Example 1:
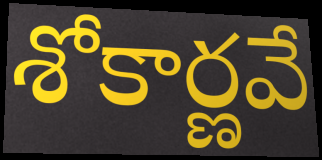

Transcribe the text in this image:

శోకార్ణవే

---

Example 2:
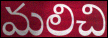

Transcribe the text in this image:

మలిచి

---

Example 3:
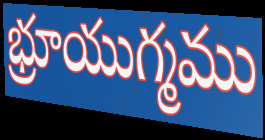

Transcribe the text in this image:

భ్రూయుగ్మము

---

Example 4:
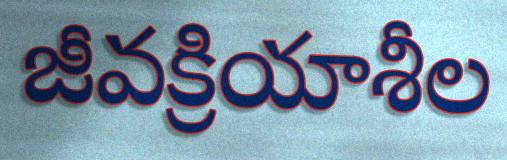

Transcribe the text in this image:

జీవక్రియాశీల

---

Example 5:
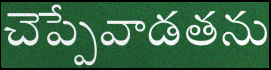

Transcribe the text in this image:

చెప్పేవాడతను